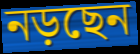
নড়ছেন